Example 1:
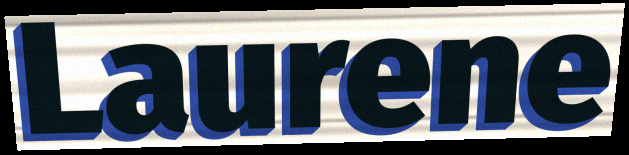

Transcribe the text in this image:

Laurene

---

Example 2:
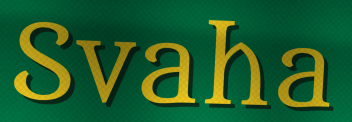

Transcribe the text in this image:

Svaha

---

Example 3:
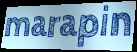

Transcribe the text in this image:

marapin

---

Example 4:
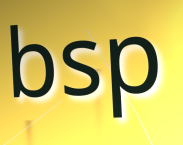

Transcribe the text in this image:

bsp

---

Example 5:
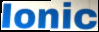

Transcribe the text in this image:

Ionic